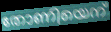
തോണിയെന്